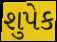
શુપેક